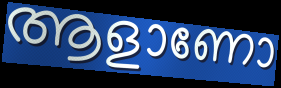
ആളാണോ